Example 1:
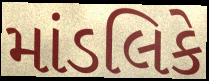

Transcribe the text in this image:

માંડલિકે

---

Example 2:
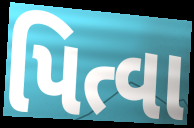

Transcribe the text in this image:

પિત્વા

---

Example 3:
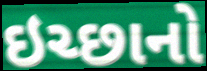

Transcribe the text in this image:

ઇચ્છાનો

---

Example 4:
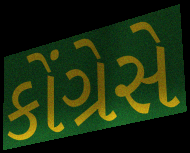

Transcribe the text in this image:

કોંગ્રેસે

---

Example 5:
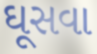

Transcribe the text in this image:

ઘૂસવા